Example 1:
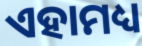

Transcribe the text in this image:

ଏହାମଧ୍ୟ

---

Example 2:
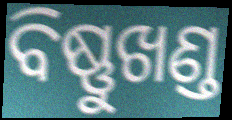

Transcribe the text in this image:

ବିଷ୍ଣୁଖଣ୍ଡ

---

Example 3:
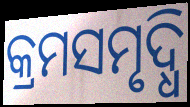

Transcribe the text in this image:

କ୍ରମସମୃଦ୍ଧି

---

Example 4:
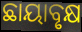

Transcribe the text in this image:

ଛାୟାବୃକ୍ଷ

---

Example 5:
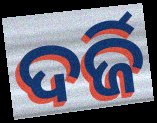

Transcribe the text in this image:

ଦର୍ଜି